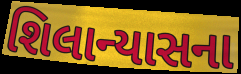
શિલાન્યાસના